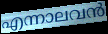
എന്നാലവൻ